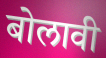
बोलावी